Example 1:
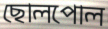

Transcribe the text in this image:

ছোলপোল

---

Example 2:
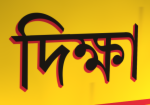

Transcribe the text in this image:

দিক্ষা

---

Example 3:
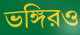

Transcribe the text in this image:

ভঙ্গিরও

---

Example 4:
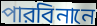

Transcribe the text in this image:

পারবিনানে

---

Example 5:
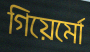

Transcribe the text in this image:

গিয়ের্মো